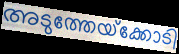
അടുത്തേയ്‌ക്കോടി